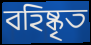
বহিষ্কৃত